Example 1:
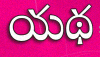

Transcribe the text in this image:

యథ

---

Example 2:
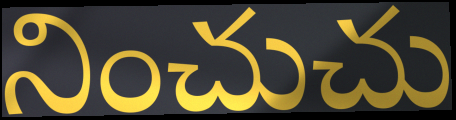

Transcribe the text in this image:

నించుచు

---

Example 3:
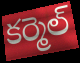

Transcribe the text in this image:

కర్మెల్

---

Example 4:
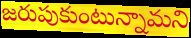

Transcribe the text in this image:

జరుపుకుంటున్నామని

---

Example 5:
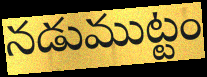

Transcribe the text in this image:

నడుముట్టం